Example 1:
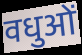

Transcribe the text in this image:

वधुओं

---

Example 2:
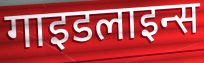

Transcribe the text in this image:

गाइडलाइन्स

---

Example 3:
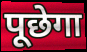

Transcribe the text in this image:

पूछेगा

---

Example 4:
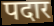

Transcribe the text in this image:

पदार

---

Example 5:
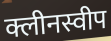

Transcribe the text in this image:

क्लीनस्वीप